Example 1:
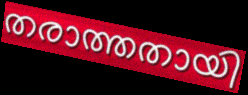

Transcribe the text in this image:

തരാത്തതായി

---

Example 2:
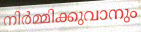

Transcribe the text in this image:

നിർമ്മിക്കുവാനും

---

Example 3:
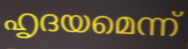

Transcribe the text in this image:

ഹൃദയമെന്ന്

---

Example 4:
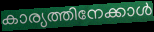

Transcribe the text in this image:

കാര്യത്തിനേക്കാൾ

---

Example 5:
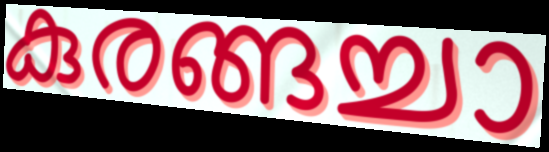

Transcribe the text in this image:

കുരങ്ങച്ചാ